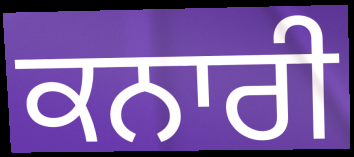
ਕਨਾਰੀ